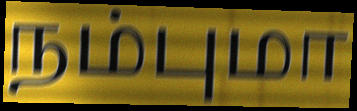
நம்புமா